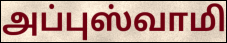
அப்புஸ்வாமி